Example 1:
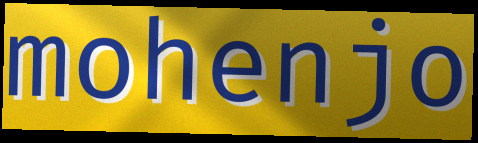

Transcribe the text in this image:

mohenjo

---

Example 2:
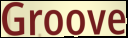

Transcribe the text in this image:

Groove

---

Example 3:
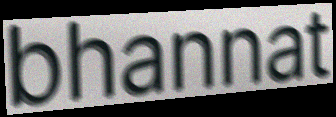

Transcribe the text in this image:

bhannat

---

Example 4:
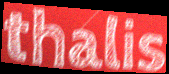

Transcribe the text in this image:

thalis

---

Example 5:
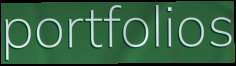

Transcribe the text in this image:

portfolios